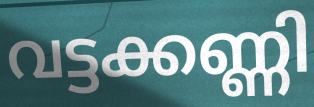
വട്ടക്കണ്ണി